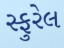
સ્ફુરેલ